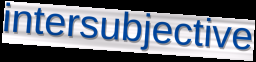
intersubjective